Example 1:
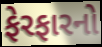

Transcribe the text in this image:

ફેરફારનો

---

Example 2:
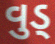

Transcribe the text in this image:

વુડ્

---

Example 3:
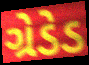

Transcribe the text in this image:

ગ્રેડેડ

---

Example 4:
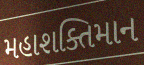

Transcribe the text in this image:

મહાશક્તિમાન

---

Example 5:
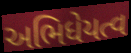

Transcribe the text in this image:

અભિધેયત્વ